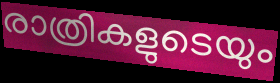
രാത്രികളുടെയും